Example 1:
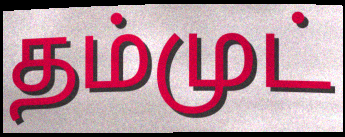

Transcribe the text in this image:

தம்முட்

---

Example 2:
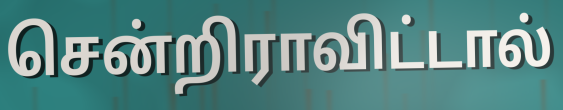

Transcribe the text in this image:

சென்றிராவிட்டால்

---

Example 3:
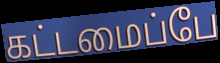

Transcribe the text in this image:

கட்டமைப்பே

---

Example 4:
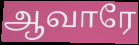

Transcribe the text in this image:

ஆவாரே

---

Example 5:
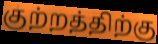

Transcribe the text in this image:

குற்றத்திற்கு